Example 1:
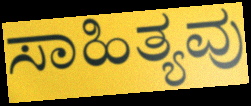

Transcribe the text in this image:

ಸಾಹಿತ್ಯವು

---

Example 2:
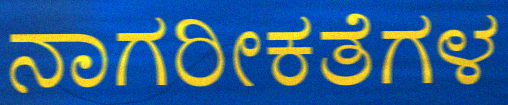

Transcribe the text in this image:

ನಾಗರೀಕತೆಗಳ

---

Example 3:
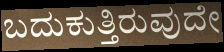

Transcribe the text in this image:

ಬದುಕುತ್ತಿರುವುದೇ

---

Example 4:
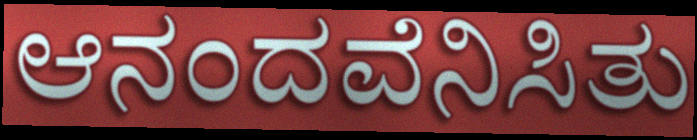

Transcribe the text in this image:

ಆನಂದವೆನಿಸಿತು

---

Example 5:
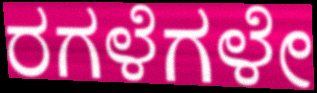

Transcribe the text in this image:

ರಗಳೆಗಳೇ